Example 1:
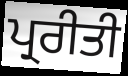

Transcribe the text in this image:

ਪ੍ਰਰੀਤੀ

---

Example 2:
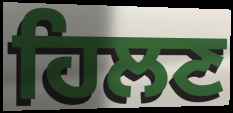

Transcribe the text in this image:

ਹਿਲਣ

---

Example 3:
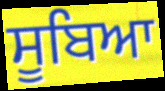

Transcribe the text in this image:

ਸੂਬਿਆ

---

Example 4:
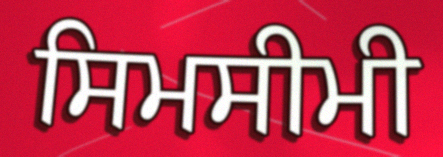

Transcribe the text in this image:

ਸਿਮਸੀਮੀ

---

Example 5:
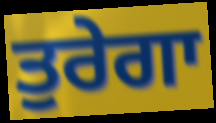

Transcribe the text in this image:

ਤੁਰੇਗਾ